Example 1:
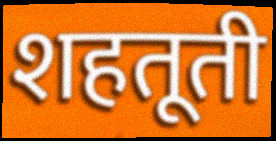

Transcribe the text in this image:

शहतूती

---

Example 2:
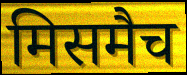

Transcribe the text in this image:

मिसमैच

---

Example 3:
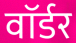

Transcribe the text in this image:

वॉर्डर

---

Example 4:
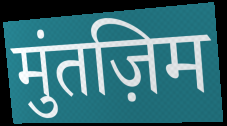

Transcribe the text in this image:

मुंतज़िम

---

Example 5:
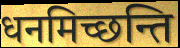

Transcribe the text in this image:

धनमिच्छन्ति